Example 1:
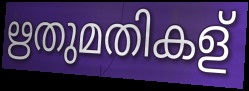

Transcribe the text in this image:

ഋതുമതികള്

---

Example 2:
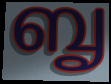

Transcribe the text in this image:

ബൃ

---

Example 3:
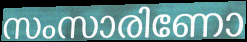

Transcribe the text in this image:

സംസാരിണോ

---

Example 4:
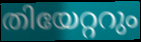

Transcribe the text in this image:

തിയേറ്ററും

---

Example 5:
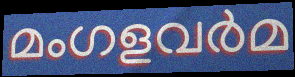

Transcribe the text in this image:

മംഗളവർമ